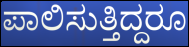
ಪಾಲಿಸುತ್ತಿದ್ದರೂ